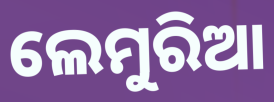
ଲେମୁରିଆ